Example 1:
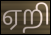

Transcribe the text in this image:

ஏறி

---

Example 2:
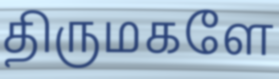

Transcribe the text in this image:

திருமகளே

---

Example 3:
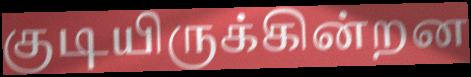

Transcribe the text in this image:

குடியிருக்கின்றன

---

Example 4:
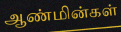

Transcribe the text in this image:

ஆண்மின்கள்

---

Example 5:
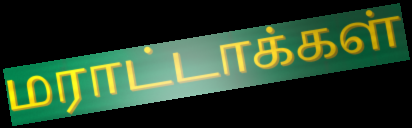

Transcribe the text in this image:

மராட்டாக்கள்